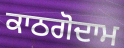
ਕਾਠਗੋਦਾਮ